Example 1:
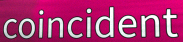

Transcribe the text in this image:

coincident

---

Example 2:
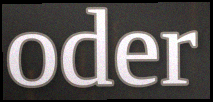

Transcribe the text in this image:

oder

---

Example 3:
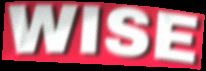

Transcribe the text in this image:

WISE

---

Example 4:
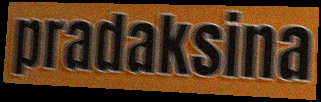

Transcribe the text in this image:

pradaksina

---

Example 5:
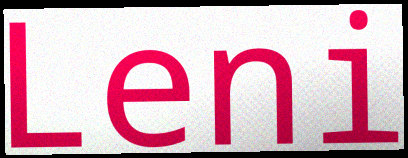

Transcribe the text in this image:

Leni